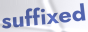
suffixed